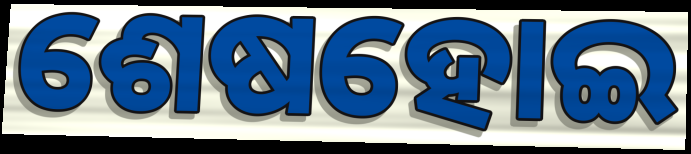
ଶେଷହୋଇ